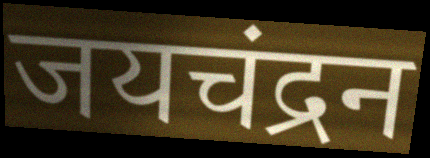
जयचंद्रन